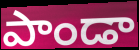
పాండా